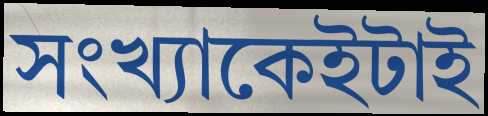
সংখ্যাকেইটাই